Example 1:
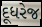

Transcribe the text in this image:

દૂધરેજ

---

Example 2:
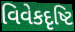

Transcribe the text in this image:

વિવેકદૃષ્ટિ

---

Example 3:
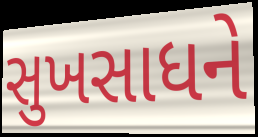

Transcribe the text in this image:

સુખસાધને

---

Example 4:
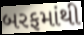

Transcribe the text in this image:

બરફમાંથી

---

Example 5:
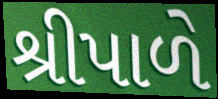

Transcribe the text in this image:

શ્રીપાળે